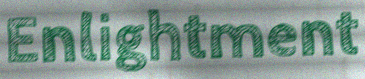
Enlightment